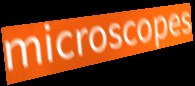
microscopes